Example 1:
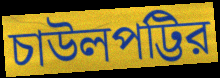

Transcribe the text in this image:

চাউলপট্টির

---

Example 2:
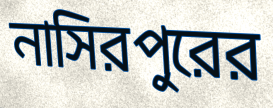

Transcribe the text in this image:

নাসিরপুরের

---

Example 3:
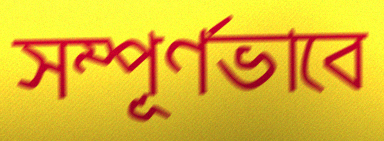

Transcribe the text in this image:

সম্পূর্ণভাবে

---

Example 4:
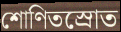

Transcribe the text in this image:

শোণিতস্রোত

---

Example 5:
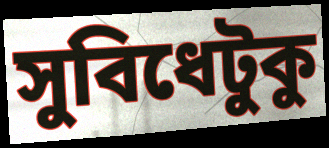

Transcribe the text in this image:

সুবিধেটুকু